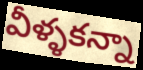
వీళ్ళకన్నా